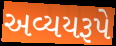
અવ્યયરૂપે